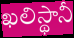
ఖలిస్థానీ